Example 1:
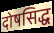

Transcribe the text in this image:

दोषसिद्ध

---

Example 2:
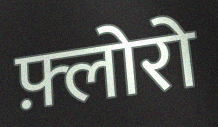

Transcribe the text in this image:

फ़्लोरो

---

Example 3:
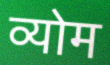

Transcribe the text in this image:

व्योम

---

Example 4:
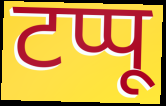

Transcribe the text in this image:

टप्पू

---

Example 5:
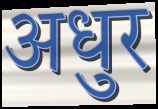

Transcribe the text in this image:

अधुर